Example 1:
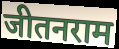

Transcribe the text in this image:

जीतनराम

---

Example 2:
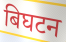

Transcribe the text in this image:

बिघटन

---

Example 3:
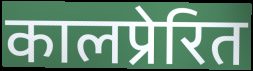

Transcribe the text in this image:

कालप्रेरित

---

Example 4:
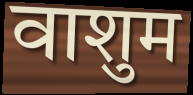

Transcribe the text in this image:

वाशुम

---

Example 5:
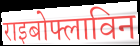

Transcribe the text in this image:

राइबोफ्लाविन